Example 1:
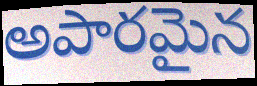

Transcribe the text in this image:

అపారమైన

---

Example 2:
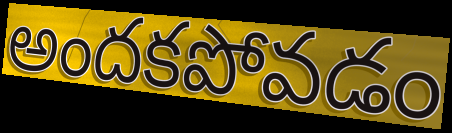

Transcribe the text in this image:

అందకపోవడం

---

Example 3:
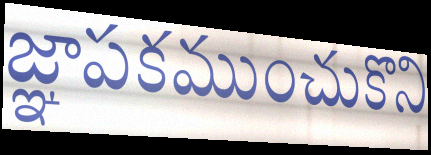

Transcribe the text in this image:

జ్ఞాపకముంచుకొని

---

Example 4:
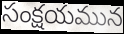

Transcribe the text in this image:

సంక్షయమున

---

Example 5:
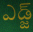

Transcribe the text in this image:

ఎడ్జ్